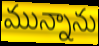
మున్నాను